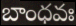
బాంధవః